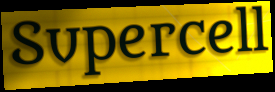
Supercell